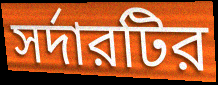
সর্দারটির